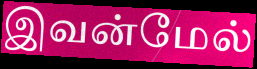
இவன்மேல்